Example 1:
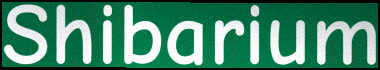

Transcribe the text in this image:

Shibarium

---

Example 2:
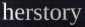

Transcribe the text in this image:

herstory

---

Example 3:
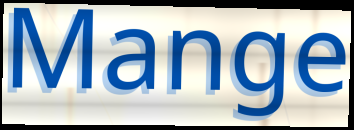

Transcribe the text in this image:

Mange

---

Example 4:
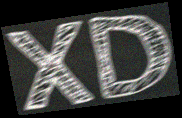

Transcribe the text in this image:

XD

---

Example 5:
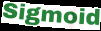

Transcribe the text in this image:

Sigmoid